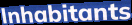
Inhabitants